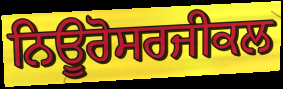
ਨਿਊਰੋਸਰਜੀਕਲ